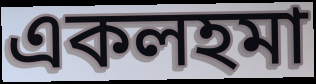
একলহমা